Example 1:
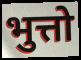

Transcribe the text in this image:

भुत्तो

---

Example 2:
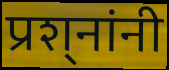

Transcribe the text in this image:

प्रश्नांनी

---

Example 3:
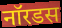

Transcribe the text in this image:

नॉरडस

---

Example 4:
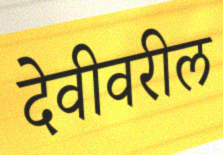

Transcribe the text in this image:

देवीवरील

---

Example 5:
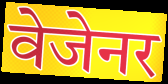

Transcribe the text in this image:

वेजेनर